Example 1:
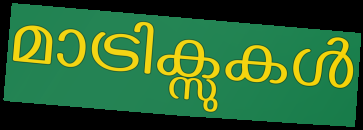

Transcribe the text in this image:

മാട്രിക്സുകൾ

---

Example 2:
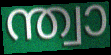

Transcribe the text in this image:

ന്ത്വാ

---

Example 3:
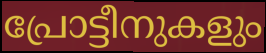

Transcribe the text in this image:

പ്രോട്ടീനുകളും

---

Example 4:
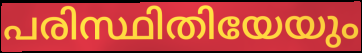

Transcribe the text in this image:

പരിസ്ഥിതിയേയും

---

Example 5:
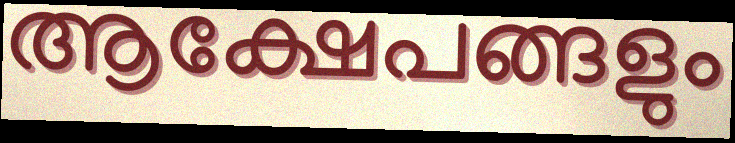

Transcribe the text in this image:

ആക്ഷേപങ്ങളും